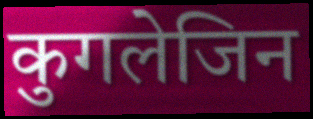
कुगलेजिन